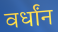
वर्धांन